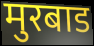
मुरबाड